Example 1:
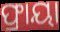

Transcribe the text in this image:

ଫ୍ରାୟା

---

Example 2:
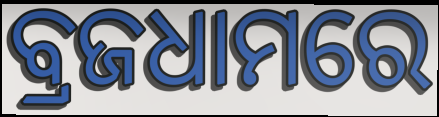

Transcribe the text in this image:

ବ୍ରଜଧାମରେ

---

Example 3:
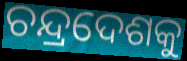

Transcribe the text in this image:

ଚନ୍ଦ୍ରଦେଶକୁ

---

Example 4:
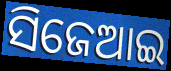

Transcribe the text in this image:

ସିଜେଆଇ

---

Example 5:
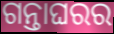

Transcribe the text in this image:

ଗନ୍ତାଘରର